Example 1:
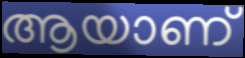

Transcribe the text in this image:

ആയാണ്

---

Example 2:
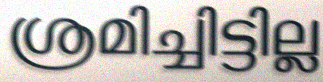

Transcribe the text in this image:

ശ്രമിച്ചിട്ടില്ല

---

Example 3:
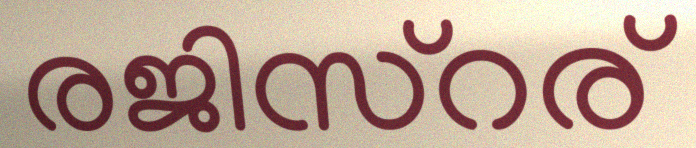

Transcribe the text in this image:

രജിസ്റര്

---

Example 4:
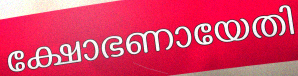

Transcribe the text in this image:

ക്ഷോഭണായേതി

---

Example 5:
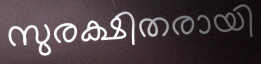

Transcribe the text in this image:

സുരക്ഷിതരായി